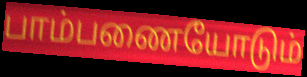
பாம்பணையோடும்